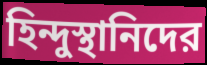
হিন্দুস্থানিদের